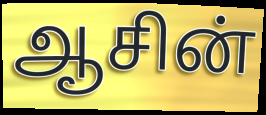
ஆசின்